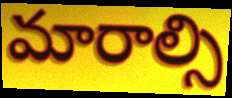
మారాల్సి